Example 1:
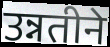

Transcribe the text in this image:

उन्नतीने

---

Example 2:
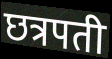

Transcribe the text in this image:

छत्रपती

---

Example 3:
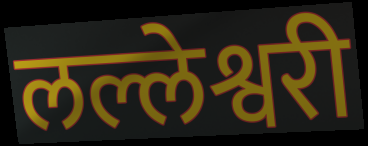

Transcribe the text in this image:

लल्लेश्वरी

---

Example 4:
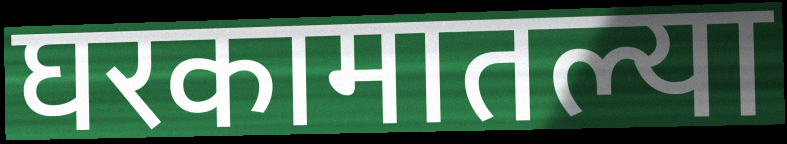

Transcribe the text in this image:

घरकामातल्या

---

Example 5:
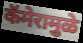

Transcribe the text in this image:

कॅमेरामुळे